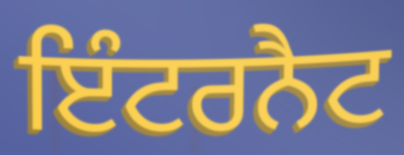
ਇੰਟਰਨੈਟ